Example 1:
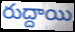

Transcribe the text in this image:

రుద్దాయి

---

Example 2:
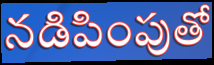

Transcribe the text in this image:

నడిపింపుతో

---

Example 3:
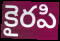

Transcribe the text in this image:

కైరపి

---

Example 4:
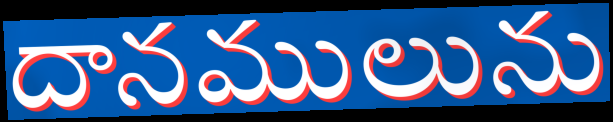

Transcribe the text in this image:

దానములును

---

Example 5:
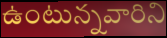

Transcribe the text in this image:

ఉంటున్నవారిని